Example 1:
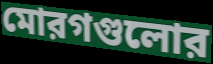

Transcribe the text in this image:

মোরগগুলোর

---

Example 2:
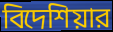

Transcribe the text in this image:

বিদেশিয়ার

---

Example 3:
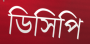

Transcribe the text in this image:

ডিসিপি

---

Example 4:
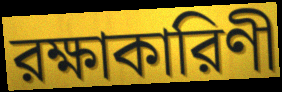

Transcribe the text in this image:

রক্ষাকারিণী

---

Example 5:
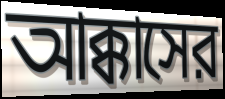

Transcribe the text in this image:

আক্কাসের